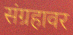
संग्रहावर